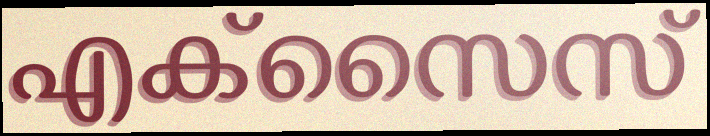
എക്‌സൈസ്